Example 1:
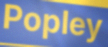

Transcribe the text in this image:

Popley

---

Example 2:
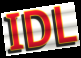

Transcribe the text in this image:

IDL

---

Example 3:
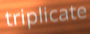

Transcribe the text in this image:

triplicate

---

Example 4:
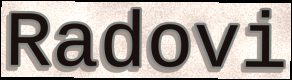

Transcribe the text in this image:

Radovi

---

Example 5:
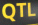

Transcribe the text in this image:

QTL